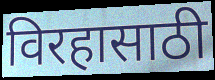
विरहासाठी